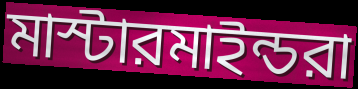
মাস্টারমাইন্ডরা